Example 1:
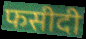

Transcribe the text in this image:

फसीदी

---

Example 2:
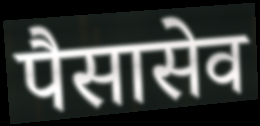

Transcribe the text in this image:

पैसासेव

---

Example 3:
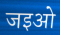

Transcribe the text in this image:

जइओ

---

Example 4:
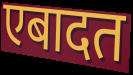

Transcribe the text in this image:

एबादत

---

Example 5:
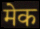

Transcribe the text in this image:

मेक